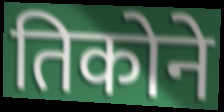
तिकोने